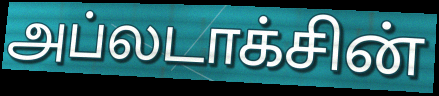
அப்லடாக்சின்